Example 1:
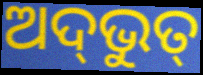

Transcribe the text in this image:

ଅଦ୍‌ଭୁତ୍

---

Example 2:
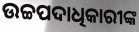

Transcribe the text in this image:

ଉଚ୍ଚପଦାଧିକାରୀଙ୍କ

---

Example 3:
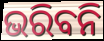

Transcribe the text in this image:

ଭରିବନି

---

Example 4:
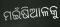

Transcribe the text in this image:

ମଇଁଷିଆଳକୁ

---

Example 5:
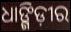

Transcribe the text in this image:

ଧାଙ୍ଗିଡ଼ୀର